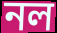
নল